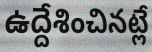
ఉద్దేశించినట్లే